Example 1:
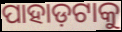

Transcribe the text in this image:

ପାହାଡ଼ଟାକୁ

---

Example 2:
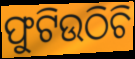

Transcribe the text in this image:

ଫୁଟିଉଠିଚି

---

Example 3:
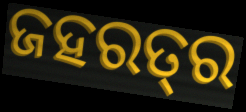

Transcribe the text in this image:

ଜହରତ୍‌ର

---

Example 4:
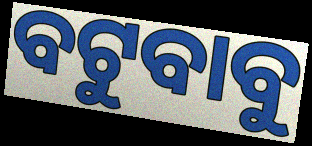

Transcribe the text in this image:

ବଟୁବାବୁ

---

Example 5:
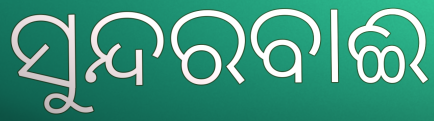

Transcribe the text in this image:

ସୁନ୍ଦରବାଈ